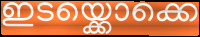
ഇടയ്ക്കൊക്കെ